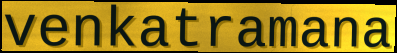
venkatramana